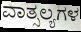
ವಾತ್ಸಲ್ಯಗಳ